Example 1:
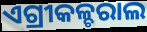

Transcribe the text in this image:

ଏଗ୍ରୀକଳ୍ଚରାଲ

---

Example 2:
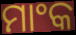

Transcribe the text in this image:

ମାଂକ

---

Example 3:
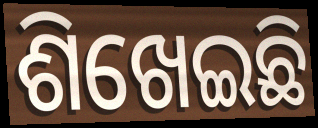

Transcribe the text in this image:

ଶିଖେଇଛି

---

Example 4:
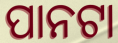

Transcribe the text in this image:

ପାନଟା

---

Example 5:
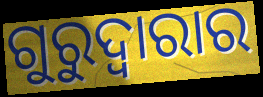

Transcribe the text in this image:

ଗୁରୁଦ୍ୱାରାର